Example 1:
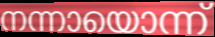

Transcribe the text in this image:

നന്നായൊന്ന്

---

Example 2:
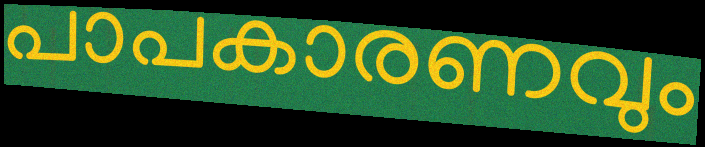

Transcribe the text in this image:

പാപകാരണവും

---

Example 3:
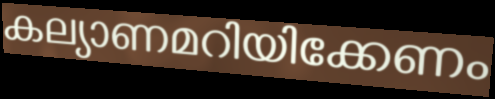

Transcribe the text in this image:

കല്യാണമറിയിക്കേണം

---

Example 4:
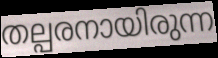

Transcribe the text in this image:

തല്പരനായിരുന്ന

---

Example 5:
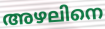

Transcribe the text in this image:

അഴലിനെ